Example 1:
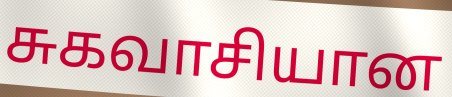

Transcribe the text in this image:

சுகவாசியான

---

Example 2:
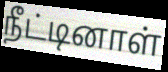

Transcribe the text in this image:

நீட்டினாள்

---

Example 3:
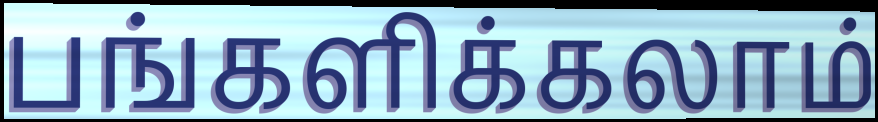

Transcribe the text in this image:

பங்களிக்கலாம்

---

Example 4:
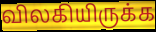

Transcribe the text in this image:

விலகியிருக்க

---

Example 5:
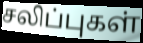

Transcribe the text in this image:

சலிப்புகள்